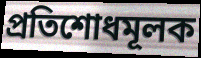
প্রতিশোধমূলক